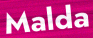
Malda